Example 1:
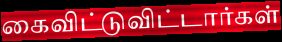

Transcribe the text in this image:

கைவிட்டுவிட்டார்கள்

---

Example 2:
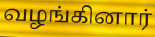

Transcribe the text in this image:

வழங்கினார்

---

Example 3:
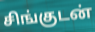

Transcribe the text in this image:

சிங்குடன்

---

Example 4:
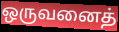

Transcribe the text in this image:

ஒருவனைத்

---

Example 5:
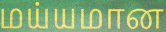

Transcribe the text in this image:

மய்யமான